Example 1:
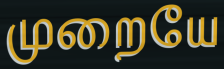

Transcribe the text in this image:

முறையே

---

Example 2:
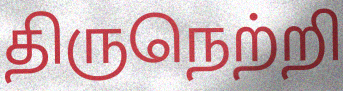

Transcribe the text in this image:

திருநெற்றி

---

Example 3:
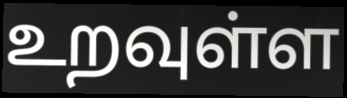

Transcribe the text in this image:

உறவுள்ள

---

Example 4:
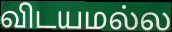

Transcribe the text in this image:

விடயமல்ல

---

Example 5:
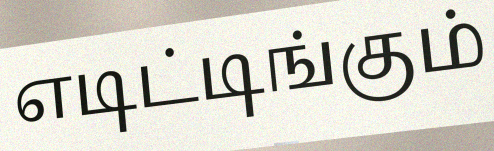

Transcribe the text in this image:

எடிட்டிங்கும்